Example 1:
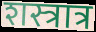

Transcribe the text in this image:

शस्त्रात्र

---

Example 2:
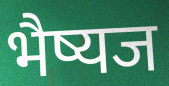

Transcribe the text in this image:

भैष्यज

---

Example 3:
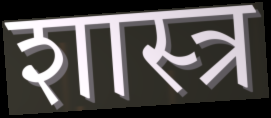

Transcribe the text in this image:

शास्त्र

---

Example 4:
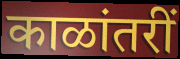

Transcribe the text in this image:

काळांतरीं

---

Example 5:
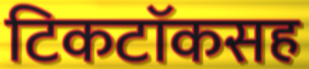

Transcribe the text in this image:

टिकटॉकसह